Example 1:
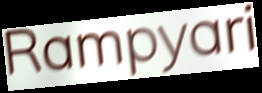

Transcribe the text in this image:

Rampyari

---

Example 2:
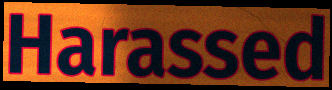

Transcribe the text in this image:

Harassed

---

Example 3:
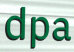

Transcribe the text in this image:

dpa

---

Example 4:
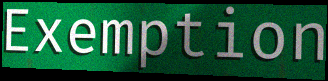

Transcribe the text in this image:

Exemption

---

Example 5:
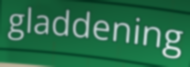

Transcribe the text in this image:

gladdening